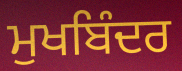
ਮੁਖਬਿੰਦਰ